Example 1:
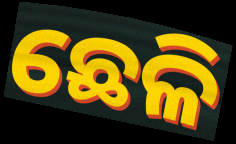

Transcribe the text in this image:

ଛେଳି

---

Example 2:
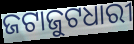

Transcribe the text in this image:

ଜଟାଜୁଟଧାରୀ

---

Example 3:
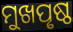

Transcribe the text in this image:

ମୁଖପୃଷ୍ଠ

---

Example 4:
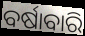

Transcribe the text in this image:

ବର୍ଷାବାରି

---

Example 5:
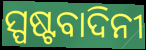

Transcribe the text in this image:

ସ୍ପଷ୍ଟବାଦିନୀ